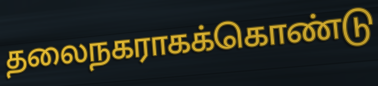
தலைநகராகக்கொண்டு